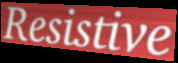
Resistive